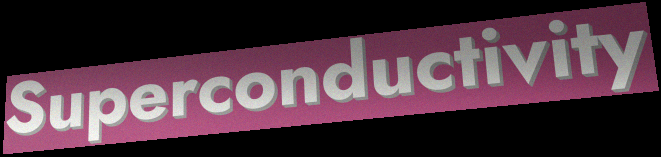
Superconductivity